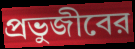
প্রভুজীবের